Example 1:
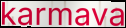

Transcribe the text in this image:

karmava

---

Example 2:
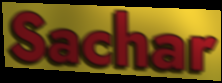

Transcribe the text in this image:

Sachar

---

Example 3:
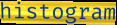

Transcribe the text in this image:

histogram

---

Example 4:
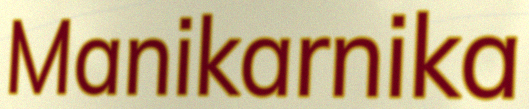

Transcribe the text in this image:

Manikarnika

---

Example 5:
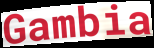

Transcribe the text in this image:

Gambia